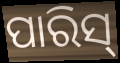
ପାରିସ୍